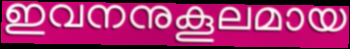
ഇവനനുകൂലമായ